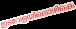
ഇടവേളയിലൊഴികെ